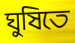
ঘুষিতে